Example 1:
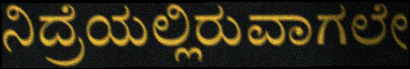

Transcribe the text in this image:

ನಿದ್ರೆಯಲ್ಲಿರುವಾಗಲೇ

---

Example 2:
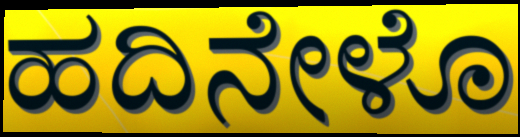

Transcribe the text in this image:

ಹದಿನೇಳೊ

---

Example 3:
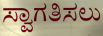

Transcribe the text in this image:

ಸ್ವಾಗತಿಸಲು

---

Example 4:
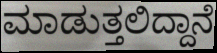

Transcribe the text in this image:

ಮಾಡುತ್ತಲಿದ್ದಾನೆ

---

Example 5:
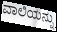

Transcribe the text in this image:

ವಾಲಿಯನ್ನು